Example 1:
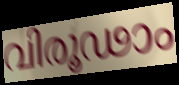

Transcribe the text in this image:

വിരൂഢാം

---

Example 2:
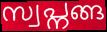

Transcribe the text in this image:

സ്വപ്നങ്ങ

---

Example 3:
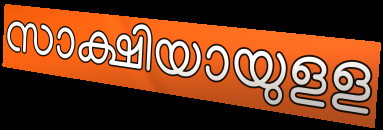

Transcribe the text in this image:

സാക്ഷിയായുളള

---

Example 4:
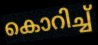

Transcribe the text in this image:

കൊറിച്ച്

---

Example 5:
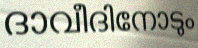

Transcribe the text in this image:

ദാവീദിനോടും